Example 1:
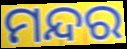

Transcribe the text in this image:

ମନ୍ଦର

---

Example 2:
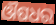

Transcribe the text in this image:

ଔଷଧର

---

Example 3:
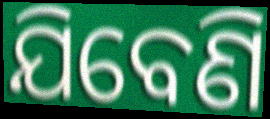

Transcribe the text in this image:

ଯିବେଣି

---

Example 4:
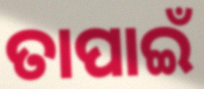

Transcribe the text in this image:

ତାପାଇଁ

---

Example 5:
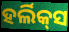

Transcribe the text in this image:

ହର୍ଲିକ୍‌ସ